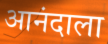
आनंदाला